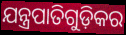
ଯନ୍ତ୍ରପାତିଗୁଡ଼ିକର